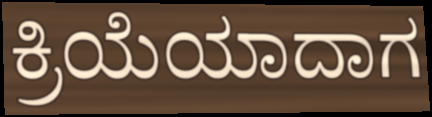
ಕ್ರಿಯೆಯಾದಾಗ